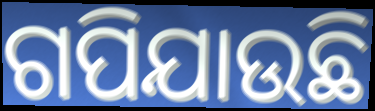
ଗପିଯାଉଛି